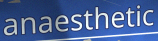
anaesthetic